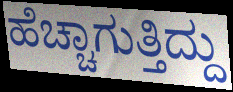
ಹೆಚ್ಚಾಗುತ್ತಿದ್ದು